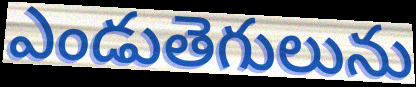
ఎండుతెగులును